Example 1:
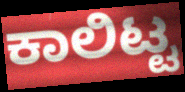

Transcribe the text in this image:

ಕಾಲಿಟ್ಟ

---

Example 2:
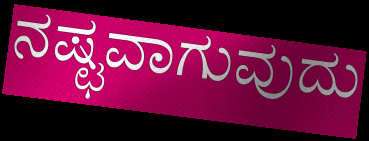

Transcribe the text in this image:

ನಷ್ಟವಾಗುವುದು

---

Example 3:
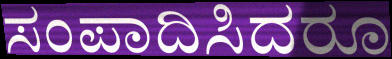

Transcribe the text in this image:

ಸಂಪಾದಿಸಿದರೂ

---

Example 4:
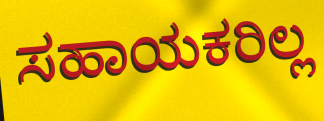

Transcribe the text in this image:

ಸಹಾಯಕರಿಲ್ಲ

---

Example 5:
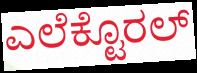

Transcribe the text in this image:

ಎಲೆಕ್ಟೊರಲ್